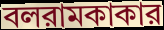
বলরামকাকার